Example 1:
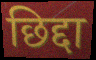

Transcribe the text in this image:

छिद्दा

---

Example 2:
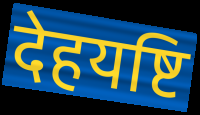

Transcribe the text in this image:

देहयष्टि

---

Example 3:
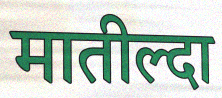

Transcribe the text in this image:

मातील्‍दा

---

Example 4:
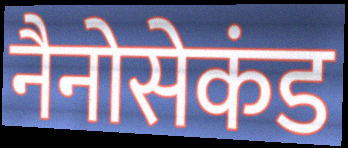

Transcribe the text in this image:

नैनोसेकंड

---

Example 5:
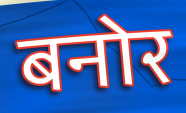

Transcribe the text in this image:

बनोर